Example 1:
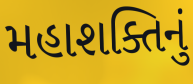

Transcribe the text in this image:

મહાશક્તિનું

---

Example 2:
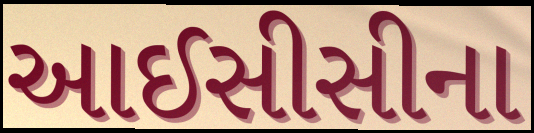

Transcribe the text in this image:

આઈસીસીના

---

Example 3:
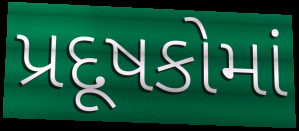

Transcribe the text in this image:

પ્રદૂષકોમાં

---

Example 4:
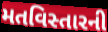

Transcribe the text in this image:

મતવિસ્તારની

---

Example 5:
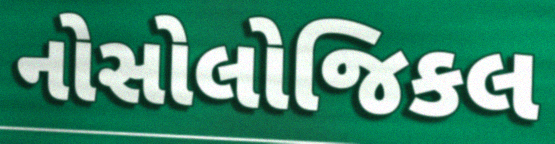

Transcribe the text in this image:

નોસોલોજિકલ